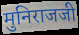
मुनिराजजी